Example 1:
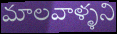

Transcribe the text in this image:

మాలవాళ్ళని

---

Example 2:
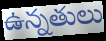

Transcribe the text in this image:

ఉన్నతులు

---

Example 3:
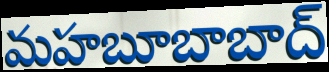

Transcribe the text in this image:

మహబూబాబాద్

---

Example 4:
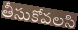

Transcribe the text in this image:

తీసుకోవలసి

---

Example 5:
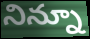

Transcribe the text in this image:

నిన్నూ